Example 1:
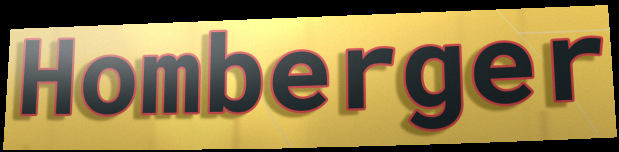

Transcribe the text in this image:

Homberger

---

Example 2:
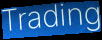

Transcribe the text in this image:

Trading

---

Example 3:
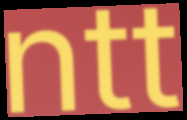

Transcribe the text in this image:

ntt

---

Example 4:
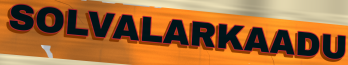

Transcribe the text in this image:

SOLVALARKAADU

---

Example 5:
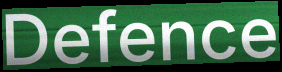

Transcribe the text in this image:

Defence